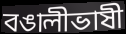
বঙালীভাষী